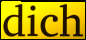
dich